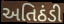
અતિઠંડી